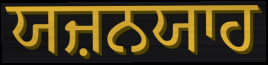
ਯਜ਼ਨਯਾਹ